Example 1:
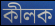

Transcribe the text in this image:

কীলক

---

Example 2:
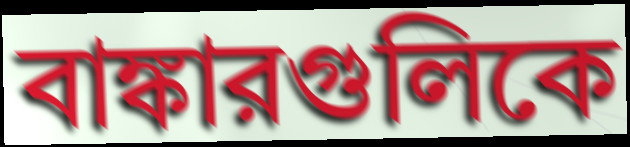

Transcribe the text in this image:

বাঙ্কারগুলিকে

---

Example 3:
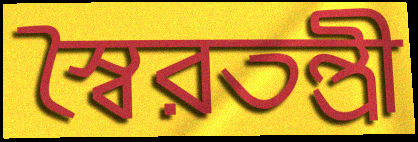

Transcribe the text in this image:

স্বৈরতন্ত্রী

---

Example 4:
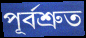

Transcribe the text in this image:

পূর্বশ্রুত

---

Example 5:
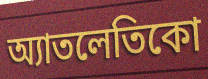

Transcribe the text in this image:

অ্যাতলেতিকো